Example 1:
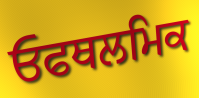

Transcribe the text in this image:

ਓਫਥਲਮਿਕ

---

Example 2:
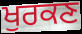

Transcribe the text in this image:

ਖੁਰਕਣ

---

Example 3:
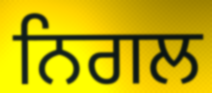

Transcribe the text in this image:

ਨਿਗਲ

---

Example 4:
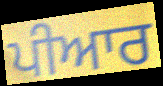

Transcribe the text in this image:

ਪੀਆਰ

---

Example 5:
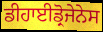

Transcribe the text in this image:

ਡੀਹਾਈਡ੍ਰੋਜੇਨੇਸ